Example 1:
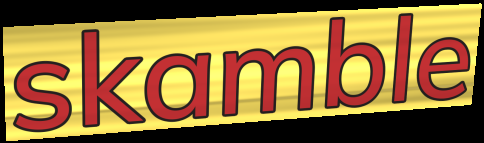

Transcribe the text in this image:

skamble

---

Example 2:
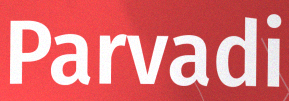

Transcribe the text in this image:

Parvadi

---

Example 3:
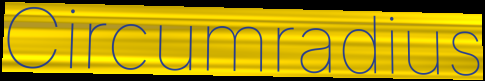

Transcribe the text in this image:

Circumradius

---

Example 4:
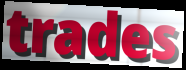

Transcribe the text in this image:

trades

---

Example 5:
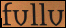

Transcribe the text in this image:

fullu